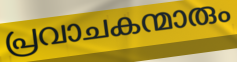
പ്രവാചകന്മാരും